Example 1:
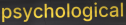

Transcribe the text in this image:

psychological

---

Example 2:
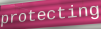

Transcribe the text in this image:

protecting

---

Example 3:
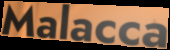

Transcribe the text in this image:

Malacca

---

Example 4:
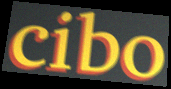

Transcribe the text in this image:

cibo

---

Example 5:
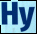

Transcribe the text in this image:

Hy